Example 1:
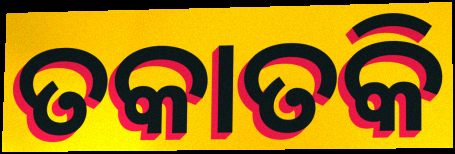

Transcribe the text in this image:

ତକାତକି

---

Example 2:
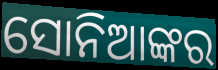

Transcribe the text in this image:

ସୋନିଆଙ୍କର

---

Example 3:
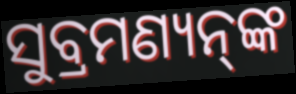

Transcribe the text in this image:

ସୁବ୍ରମଣ୍ୟନ୍‌ଙ୍କ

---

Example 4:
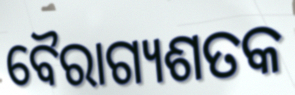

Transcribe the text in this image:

ବୈରାଗ୍ୟଶତକ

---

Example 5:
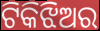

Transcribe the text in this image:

ଟିକିଝିଅର